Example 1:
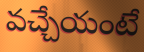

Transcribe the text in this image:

వచ్చేయంటే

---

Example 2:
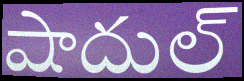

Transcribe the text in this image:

షాదుల్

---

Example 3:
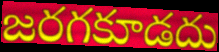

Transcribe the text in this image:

జరగకూడదు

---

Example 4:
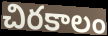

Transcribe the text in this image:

చిరకాలం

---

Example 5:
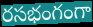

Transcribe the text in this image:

రసభంగంగా